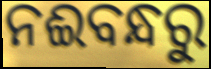
ନଈବନ୍ଧରୁ